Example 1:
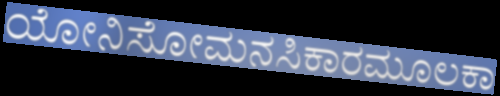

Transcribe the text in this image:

ಯೋನಿಸೋಮನಸಿಕಾರಮೂಲಕಾ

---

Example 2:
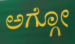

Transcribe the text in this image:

ಅಗ್ಗೋ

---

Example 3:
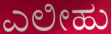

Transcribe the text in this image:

ಎಲೀಹು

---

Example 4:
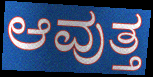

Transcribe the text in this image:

ಆವುತ್ತ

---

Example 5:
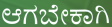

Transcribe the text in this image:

ಆಗಬೇಕಾಗಿ